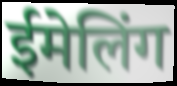
ईमेलिंग